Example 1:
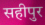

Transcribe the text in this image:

सहीपुर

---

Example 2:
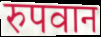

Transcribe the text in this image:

रुपवान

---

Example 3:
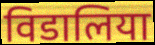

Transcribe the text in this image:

विडालिया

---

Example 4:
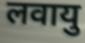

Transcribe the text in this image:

लवायु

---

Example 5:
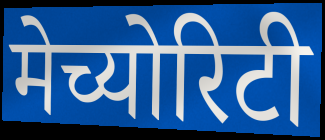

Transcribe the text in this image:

मेच्योरिटी